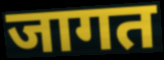
जागत